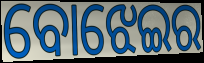
ବୋଝେଇର